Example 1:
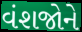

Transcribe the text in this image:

વંશજોને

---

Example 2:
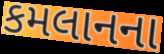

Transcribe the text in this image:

કમલાનના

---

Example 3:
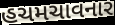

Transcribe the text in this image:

હચમચાવનાર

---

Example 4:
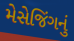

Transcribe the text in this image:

મેસેજિંગનું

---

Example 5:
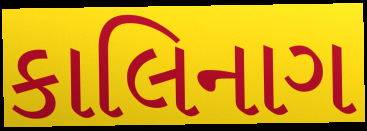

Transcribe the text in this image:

કાલિનાગ